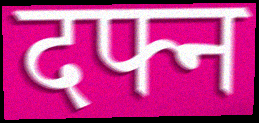
दफ्न